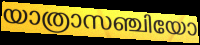
യാത്രാസഞ്ചിയോ